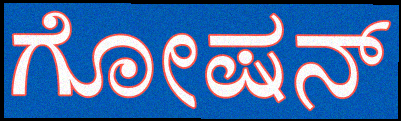
ಗೋಷನ್